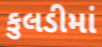
કુલડીમાં